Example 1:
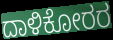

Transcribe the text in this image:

ದಾಳಿಕೋರರ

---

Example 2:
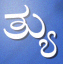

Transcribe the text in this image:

ತ್ಯು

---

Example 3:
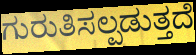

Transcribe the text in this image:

ಗುರುತಿಸಲ್ಪಡುತ್ತದೆ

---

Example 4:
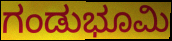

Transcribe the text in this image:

ಗಂಡುಭೂಮಿ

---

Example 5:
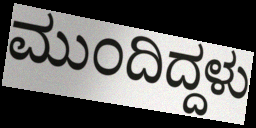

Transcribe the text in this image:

ಮುಂದಿದ್ದಳು